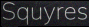
Squyres